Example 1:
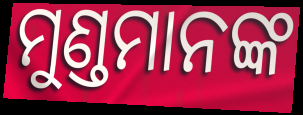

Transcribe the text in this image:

ମୁଣ୍ଡମାନଙ୍କ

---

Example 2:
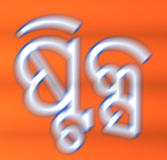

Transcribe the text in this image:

ଷ୍ଟିକ୍ସ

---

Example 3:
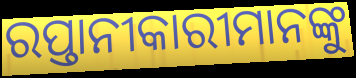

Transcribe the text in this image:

ରପ୍ତାନୀକାରୀମାନଙ୍କୁ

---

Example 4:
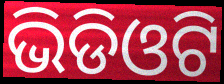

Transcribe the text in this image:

ଭିଡିଓଟି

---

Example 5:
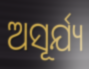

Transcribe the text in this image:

ଅସୂର୍ଯ୍ୟ